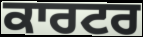
ਕਾਰਟਰ